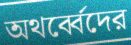
অথর্ব্বেদের